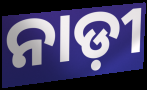
ନାଡ଼ୀ